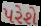
પરેશે